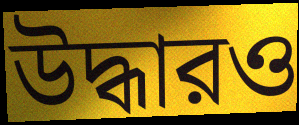
উদ্ধারও